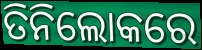
ତିନିଲୋକରେ